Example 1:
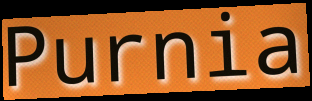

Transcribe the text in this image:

Purnia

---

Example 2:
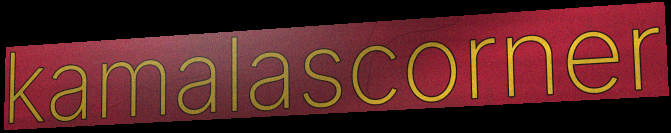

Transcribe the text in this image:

kamalascorner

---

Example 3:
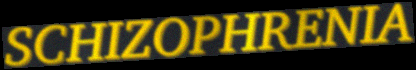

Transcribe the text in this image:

SCHIZOPHRENIA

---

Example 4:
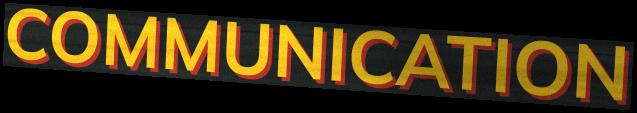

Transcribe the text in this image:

COMMUNICATION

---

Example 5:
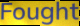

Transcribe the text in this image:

Fought